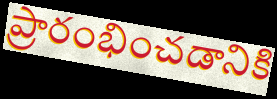
ప్రారంభించడానికి